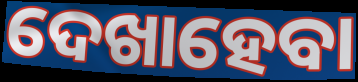
ଦେଖାହେବା